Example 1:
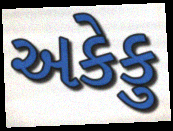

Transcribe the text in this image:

અકેકુ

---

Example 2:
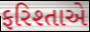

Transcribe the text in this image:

ફરિશ્તાએ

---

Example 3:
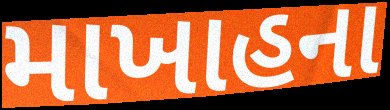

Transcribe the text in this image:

માખાહના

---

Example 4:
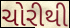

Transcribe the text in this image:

ચોરીથી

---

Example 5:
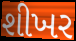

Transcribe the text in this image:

શીખર